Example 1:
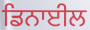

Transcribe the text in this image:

ਡਿਨਾਈਲ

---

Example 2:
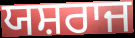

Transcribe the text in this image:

ਯਸ਼ਰਾਜ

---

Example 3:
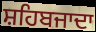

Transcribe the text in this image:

ਸ਼ਹਿਬਜਾਦਾ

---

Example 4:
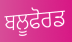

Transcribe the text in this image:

ਬਲੂਫੋਰਡ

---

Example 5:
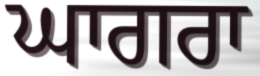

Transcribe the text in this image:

ਘਾਗਰਾ